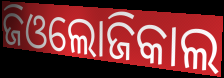
ଜିଓଲୋଜିକାଲ